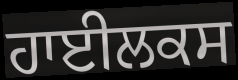
ਹਾਈਲਕਸ